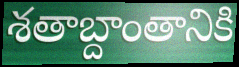
శతాబ్దాంతానికి